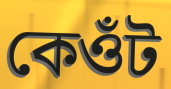
কেওঁট